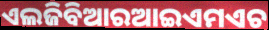
ଏଲଜିବିଆରଆଇଏମଏଚ